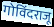
गोविंदराजू